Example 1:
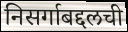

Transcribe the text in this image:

निसर्गाबद्दलची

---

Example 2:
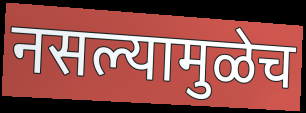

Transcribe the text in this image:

नसल्यामुळेच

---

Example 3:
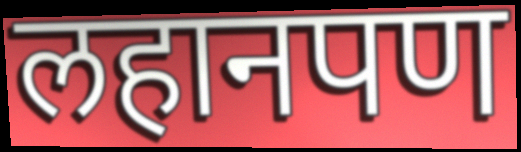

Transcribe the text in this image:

लहानपण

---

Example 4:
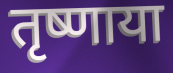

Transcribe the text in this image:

तृष्णाया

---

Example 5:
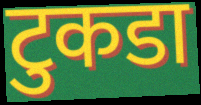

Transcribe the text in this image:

टुकडा